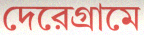
দেরেগ্রামে